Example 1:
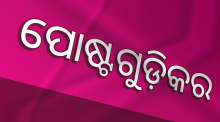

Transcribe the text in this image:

ପୋଷ୍ଟଗୁଡ଼ିକର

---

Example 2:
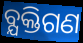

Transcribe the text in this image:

ବ୍ଯକ୍ତିଗଣ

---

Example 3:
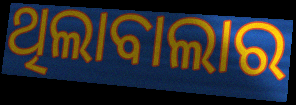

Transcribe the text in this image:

ଥିଲାବାଲାର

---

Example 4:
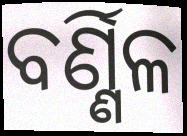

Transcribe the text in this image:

ବର୍ଣ୍ଣିଳ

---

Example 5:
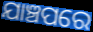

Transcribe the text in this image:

ଯାଞ୍ଚପରେ